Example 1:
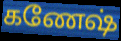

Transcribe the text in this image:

கணேஷ்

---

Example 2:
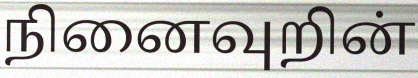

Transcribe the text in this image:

நினைவுறின்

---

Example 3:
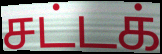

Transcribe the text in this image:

சட்டக்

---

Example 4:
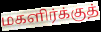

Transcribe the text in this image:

மகளிர்க்குத்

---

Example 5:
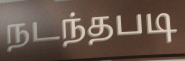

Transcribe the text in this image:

நடந்தபடி